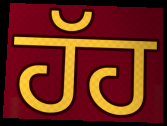
ਹੱਹ